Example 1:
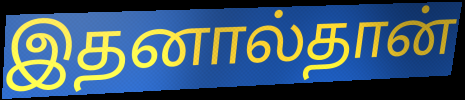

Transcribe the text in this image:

இதனால்தான்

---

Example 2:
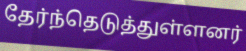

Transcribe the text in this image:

தேர்ந்தெடுத்துள்ளனர்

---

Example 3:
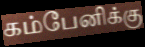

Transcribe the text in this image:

கம்பேனிக்கு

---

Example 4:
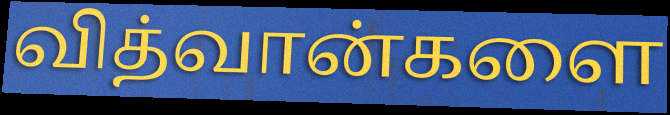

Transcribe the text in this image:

வித்வான்களை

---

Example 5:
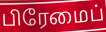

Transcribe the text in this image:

பிரேமைப்